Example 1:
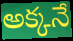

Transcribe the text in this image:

అక్కనే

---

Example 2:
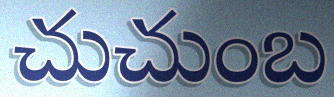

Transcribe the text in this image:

చుచుంబ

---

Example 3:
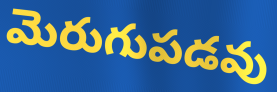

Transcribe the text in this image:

మెరుగుపడవు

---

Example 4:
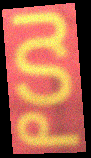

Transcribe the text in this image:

కై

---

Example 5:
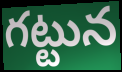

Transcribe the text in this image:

గట్టున